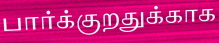
பார்க்குறதுக்காக